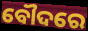
ବୌଦରେ